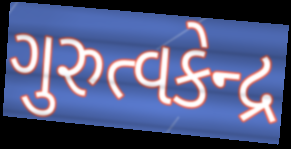
ગુરુત્વકેન્દ્ર